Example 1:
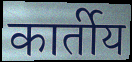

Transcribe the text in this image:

कार्तीय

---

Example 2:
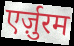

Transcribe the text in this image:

एर्ज़ुरम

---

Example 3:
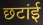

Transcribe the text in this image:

छटांई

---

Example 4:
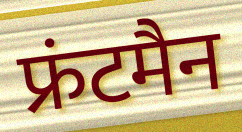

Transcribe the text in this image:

फ्रंटमैन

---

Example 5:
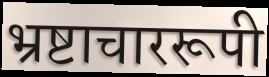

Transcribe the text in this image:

भ्रष्टाचाररूपी